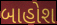
બાહોશ